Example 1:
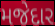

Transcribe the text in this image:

મજેદાર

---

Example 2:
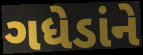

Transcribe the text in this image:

ગધેડાંને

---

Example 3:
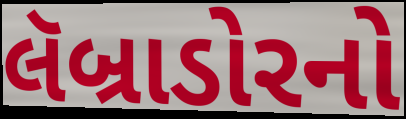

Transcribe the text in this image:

લૅબ્રાડોરનો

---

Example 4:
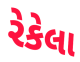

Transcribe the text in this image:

રેકેલા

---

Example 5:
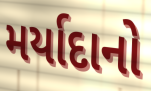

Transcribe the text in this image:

મર્યાદાનો